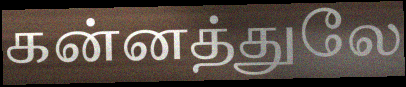
கன்னத்துலே